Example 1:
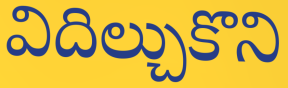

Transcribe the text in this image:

విదిల్చుకొని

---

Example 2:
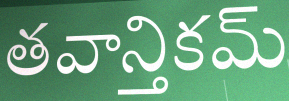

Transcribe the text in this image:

తవాన్తికమ్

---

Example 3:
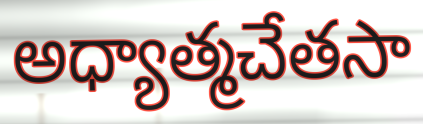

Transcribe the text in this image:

అధ్యాత్మచేతసా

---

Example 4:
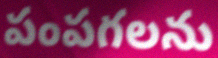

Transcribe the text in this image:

పంపగలను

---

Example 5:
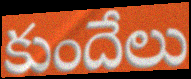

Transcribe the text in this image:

కుందేలు